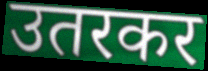
उतरकर